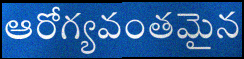
ఆరోగ్యవంతమైన